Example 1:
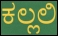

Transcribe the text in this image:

ಕಲ್ಲಲಿ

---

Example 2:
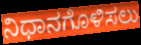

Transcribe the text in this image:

ನಿಧಾನಗೊಳಿಸಲು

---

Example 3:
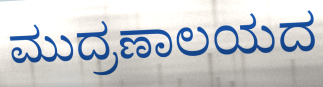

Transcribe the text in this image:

ಮುದ್ರಣಾಲಯದ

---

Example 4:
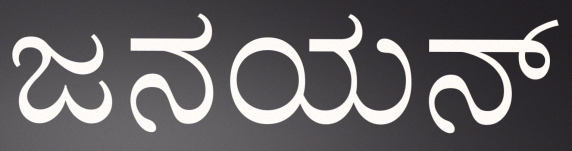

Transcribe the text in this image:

ಜನಯನ್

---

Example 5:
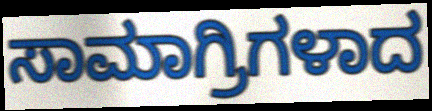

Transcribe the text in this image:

ಸಾಮಾಗ್ರಿಗಳಾದ